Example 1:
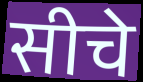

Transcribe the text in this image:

सीचे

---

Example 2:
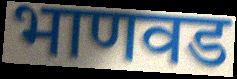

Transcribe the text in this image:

भाणवड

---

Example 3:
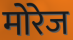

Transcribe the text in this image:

मोरेज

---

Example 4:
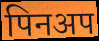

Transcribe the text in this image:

पिनअप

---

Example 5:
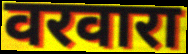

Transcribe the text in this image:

वरवारा